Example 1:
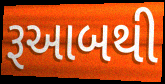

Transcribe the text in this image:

રૂઆબથી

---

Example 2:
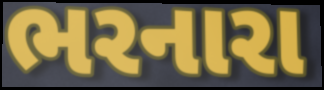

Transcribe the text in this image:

ભરનારા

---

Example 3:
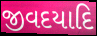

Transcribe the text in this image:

જીવદયાદિ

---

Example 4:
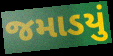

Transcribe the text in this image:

જમાડયું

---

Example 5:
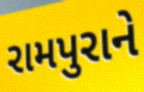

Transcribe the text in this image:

રામપુરાને